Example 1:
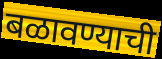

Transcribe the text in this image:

बळावण्याची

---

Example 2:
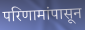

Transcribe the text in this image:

परिणामांपासून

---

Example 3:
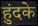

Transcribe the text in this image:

हुंदके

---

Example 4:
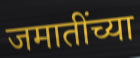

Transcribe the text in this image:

जमातींच्या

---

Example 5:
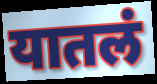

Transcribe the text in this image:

यातलं